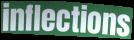
inflections